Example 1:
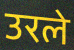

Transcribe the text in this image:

उरले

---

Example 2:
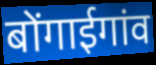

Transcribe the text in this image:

बोंगाईगांव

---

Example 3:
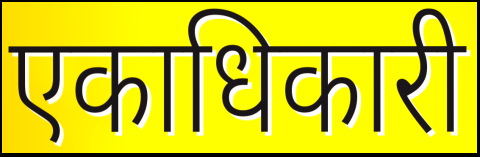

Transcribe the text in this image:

एकाधिकारी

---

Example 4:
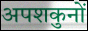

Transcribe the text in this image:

अपशकुनों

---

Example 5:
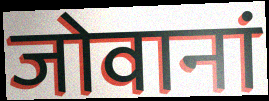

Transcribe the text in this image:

जोवानां